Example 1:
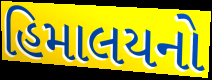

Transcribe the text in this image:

હિમાલયનો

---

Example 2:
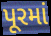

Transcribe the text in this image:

પૂરમાં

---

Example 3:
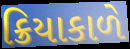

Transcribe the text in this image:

ક્રિયાકાળે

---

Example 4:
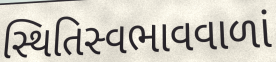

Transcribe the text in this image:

સ્થિતિસ્વભાવવાળાં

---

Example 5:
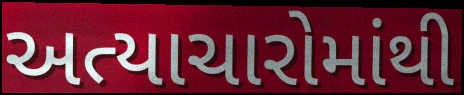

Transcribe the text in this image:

અત્યાચારોમાંથી